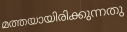
മത്തയായിരിക്കുന്നതു